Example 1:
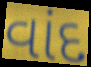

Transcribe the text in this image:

વાંદ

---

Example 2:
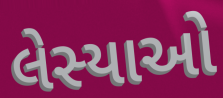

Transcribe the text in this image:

લેસ્યાઓ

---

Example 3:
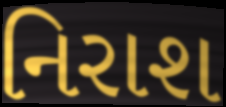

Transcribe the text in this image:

નિરાશ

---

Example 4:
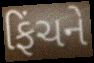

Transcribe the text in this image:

ફિંચને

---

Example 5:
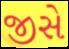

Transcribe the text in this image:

જીસે